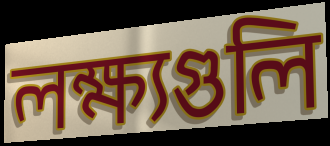
লক্ষ্যগুলি